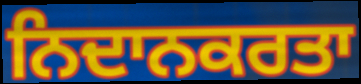
ਨਿਦਾਨਕਰਤਾ